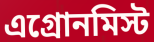
এগ্রোনমিস্ট